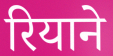
रियाने